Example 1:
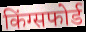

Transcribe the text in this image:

किंग्सफोर्ड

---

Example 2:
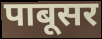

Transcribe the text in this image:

पाबूसर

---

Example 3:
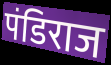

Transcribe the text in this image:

पंडिराज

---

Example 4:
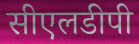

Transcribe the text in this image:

सीएलडीपी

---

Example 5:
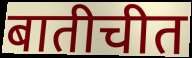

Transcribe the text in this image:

बातीचीत